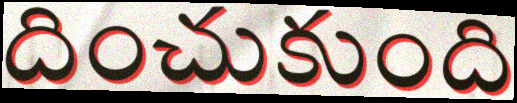
దించుకుంది